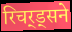
रिचर्ड्सने